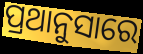
ପ୍ରଥାନୁସାରେ